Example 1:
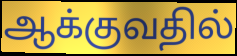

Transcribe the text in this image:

ஆக்குவதில்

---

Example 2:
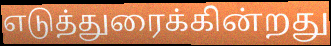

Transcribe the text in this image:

எடுத்துரைக்கின்றது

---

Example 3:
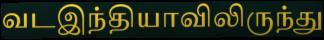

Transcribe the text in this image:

வடஇந்தியாவிலிருந்து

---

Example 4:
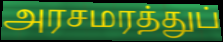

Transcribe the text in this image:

அரசமரத்துப்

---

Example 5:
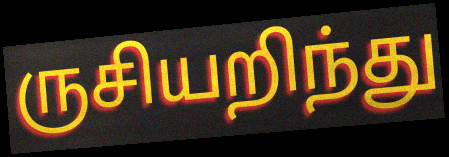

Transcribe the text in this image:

ருசியறிந்து